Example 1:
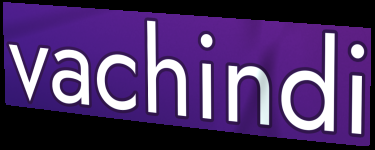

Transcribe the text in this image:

vachindi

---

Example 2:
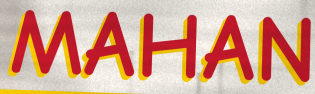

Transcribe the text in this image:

MAHAN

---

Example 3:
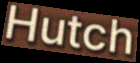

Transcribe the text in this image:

Hutch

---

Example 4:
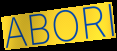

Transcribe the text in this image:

ABORI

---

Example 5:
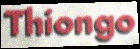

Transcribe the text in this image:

Thiongo